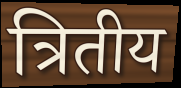
त्रितीय